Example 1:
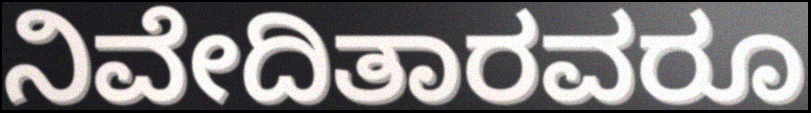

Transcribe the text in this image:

ನಿವೇದಿತಾರವರೂ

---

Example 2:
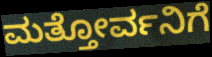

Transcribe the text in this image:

ಮತ್ತೋರ್ವನಿಗೆ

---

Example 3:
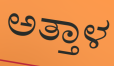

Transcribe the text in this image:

ಅತ್ತಾಳ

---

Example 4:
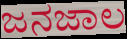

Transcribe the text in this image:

ಜನಜಾಲ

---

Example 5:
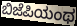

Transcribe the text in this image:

ಬಿಜೆಪಿಯಂಥ